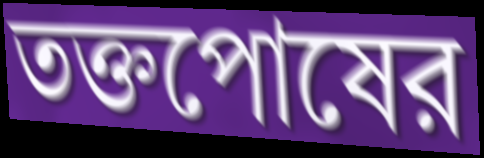
তক্তপোষের